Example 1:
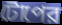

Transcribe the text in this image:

টোপের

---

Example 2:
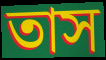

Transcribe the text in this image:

তাস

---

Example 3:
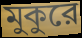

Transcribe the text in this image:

মুকুরে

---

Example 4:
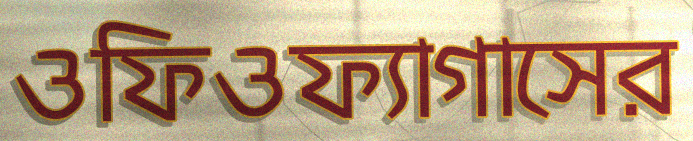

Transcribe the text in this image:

ওফিওফ্যাগাসের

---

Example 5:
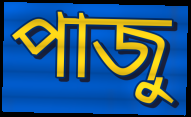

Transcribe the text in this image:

পাজু